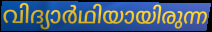
വിദ്യാർഥിയായിരുന്ന